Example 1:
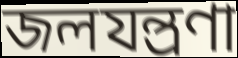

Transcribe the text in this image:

জলযন্ত্রণা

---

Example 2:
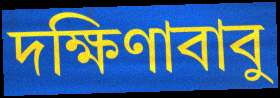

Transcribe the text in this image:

দক্ষিণাবাবু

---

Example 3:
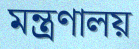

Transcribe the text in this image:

মন্ত্রণালয়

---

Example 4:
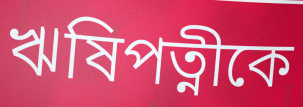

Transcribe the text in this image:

ঋষিপত্নীকে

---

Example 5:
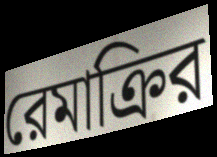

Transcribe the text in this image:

রেমাক্রির